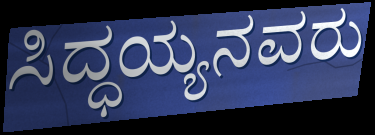
ಸಿದ್ಧಯ್ಯನವರು